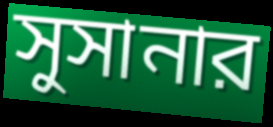
সুসানার